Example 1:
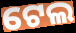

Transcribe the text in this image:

ଟେଲ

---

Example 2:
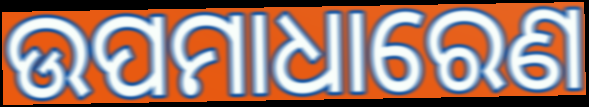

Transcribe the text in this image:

ଉପମାଧାରେଣ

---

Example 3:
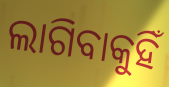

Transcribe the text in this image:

ଲାଗିବାକୁହିଁ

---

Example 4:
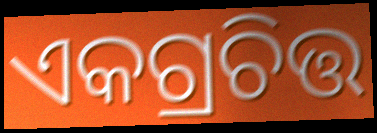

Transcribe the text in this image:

ଏକଗ୍ରଚିତ୍ତ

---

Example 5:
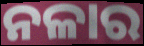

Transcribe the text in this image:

ନଳାର